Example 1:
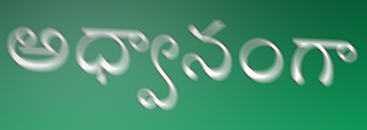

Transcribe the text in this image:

అధ్వానంగా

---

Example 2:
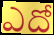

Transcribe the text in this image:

ఎదో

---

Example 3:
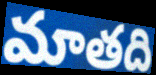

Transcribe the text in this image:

మాతది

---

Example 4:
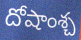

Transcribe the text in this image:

దోషాంశ్చ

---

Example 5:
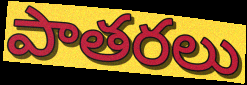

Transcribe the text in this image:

పాతరలు